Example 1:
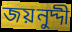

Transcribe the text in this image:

জয়নুদ্দী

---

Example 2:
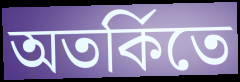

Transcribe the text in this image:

অতর্কিতে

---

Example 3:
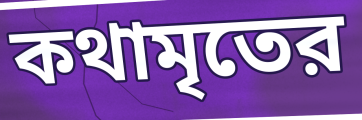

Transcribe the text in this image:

কথামৃতের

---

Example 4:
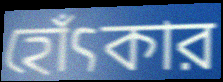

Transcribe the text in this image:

হোঁৎকার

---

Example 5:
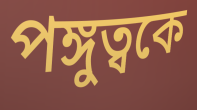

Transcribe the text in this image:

পঙ্গুত্বকে